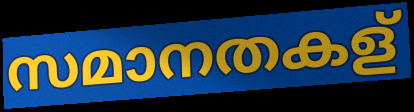
സമാനതകള്